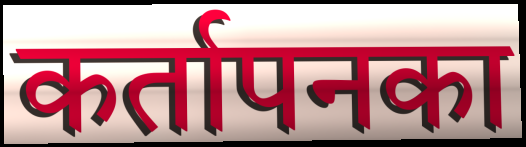
कर्तापनका